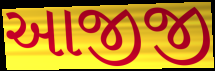
આજીજી